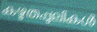
കഴുതപ്പുലികൾ